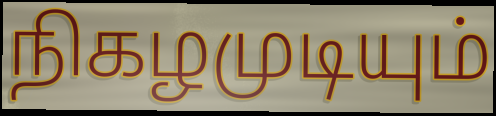
நிகழமுடியும்